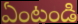
ఏంటండి